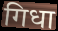
गिधा